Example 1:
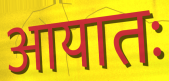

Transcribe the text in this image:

आयातः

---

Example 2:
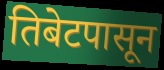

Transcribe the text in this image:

तिबेटपासून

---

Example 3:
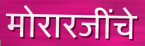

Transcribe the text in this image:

मोरारजींचे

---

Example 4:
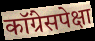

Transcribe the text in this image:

कॉंग्रेसपेक्षा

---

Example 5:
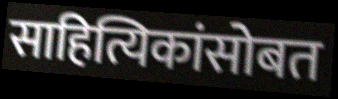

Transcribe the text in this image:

साहित्यिकांसोबत